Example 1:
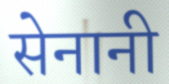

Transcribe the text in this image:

सेनानी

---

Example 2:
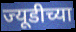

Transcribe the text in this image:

ज्यूडीच्या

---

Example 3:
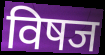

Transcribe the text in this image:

विषज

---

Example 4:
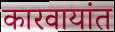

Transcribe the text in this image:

कारवायांत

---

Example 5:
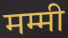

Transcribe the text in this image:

मम्मी